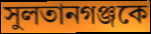
সুলতানগঞ্জকে